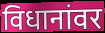
विधानांवर